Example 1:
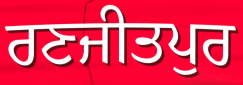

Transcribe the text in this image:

ਰਣਜੀਤਪੁਰ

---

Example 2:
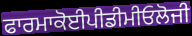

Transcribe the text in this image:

ਫਾਰਮਾਕੋਈਪੀਡੀਮੀਓਲੋਜੀ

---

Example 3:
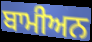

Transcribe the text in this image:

ਬਾਮੀਅਨ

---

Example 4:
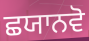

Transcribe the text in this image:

ਛਯਾਨਵੋ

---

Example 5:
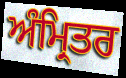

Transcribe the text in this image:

ਅੰਮ੍ਰਿਤਰ